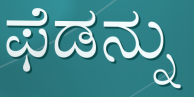
ಫೆಡನ್ನು